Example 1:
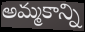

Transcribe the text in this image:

అమ్మకాన్ని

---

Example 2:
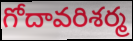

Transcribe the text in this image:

గోదావరిశర్మ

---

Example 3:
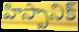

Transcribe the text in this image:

హిస్పానిక్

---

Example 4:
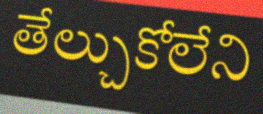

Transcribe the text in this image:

తేల్చుకోలేని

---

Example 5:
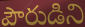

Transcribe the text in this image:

పౌరుడిని